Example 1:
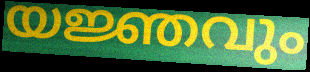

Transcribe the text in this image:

യജ്ഞവും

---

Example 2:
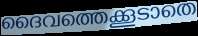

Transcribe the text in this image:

ദൈവത്തെക്കൂടാതെ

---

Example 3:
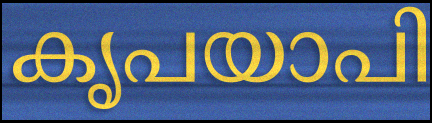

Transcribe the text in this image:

കൃപയാപി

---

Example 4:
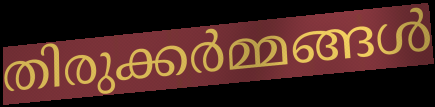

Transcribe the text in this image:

തിരുക്കർമ്മങ്ങൾ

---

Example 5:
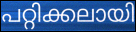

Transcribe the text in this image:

പറ്റിക്കലായി